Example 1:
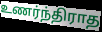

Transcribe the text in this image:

உணர்ந்திராத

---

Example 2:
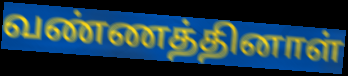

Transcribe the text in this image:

வண்ணத்தினாள்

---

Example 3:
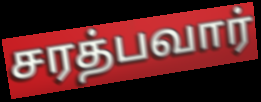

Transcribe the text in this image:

சரத்பவார்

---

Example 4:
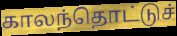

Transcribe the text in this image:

காலந்தொட்டுச்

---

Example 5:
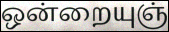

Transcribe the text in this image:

ஒன்றையுஞ்